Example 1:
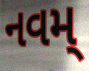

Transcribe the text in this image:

નવમ્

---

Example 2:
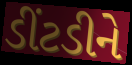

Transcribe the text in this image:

ડીંટડીને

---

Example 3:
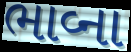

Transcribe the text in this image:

ભાવ્ના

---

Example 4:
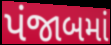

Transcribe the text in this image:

પંજાબમાં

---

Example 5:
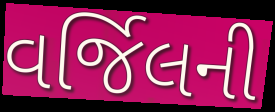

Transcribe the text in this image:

વર્જિલની